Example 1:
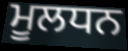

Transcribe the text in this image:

ਮੂਲਧਨ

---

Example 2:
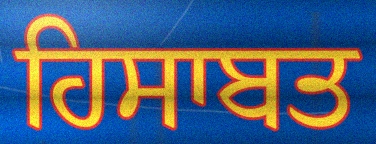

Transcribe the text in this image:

ਹਿਸਾਬਤ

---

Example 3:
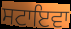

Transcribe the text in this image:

ਸਟਾਇਵਾ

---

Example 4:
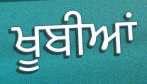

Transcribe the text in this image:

ਖੂਬੀਆਂ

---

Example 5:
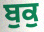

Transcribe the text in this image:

ਬੁਕੁ